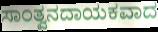
ಸಾಂತ್ವನದಾಯಕವಾದ